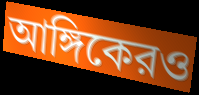
আঙ্গিকেরও